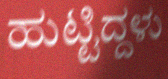
ಹುಟ್ಟಿದ್ದಳು